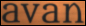
avan